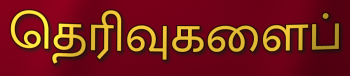
தெரிவுகளைப்